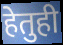
हेतुही